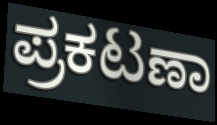
ಪ್ರಕಟಣಾ